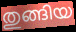
തുങ്ങിയ